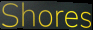
Shores